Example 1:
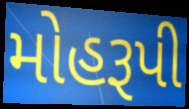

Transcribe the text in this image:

મોહરૂપી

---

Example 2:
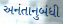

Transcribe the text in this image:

અનંતાનુબંધી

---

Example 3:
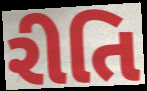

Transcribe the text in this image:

રીતિ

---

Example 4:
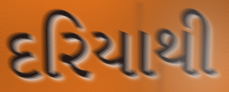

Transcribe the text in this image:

દરિયાથી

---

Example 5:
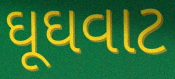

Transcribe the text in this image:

ઘૂઘવાટ